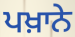
ਪਖ਼ਾਨੇ